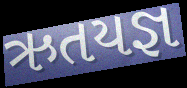
ઋતયજ્ઞ